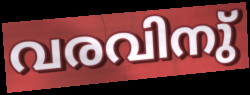
വരവിനു്